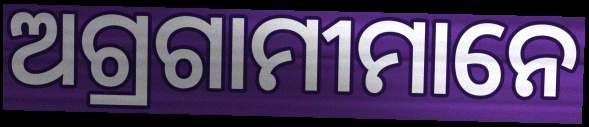
ଅଗ୍ରଗାମୀମାନେ